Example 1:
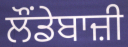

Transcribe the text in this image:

ਲੌਂਡੇਬਾਜ਼ੀ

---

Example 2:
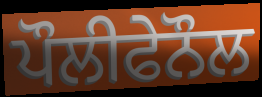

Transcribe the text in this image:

ਪੌਲੀਫੇਨੌਲ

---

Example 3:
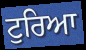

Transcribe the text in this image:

ਟੁਰਿਆ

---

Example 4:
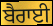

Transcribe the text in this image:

ਬੈਰਾਈ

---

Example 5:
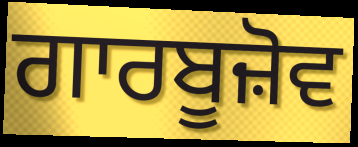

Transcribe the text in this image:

ਗਾਰਬੂਜ਼ੋਵ